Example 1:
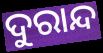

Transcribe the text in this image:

ଦୁରାନ୍ଦ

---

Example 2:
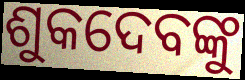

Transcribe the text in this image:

ଶୁକଦେବଙ୍କୁ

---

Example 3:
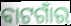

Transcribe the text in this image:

ବାଟଗାଁର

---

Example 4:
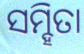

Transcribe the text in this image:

ସମ୍ହିତା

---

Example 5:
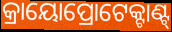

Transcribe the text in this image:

କ୍ରାୟୋପ୍ରୋଟେକ୍ଟାଣ୍ଟ୍